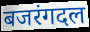
बजरंगदल